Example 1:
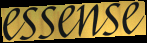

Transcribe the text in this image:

essense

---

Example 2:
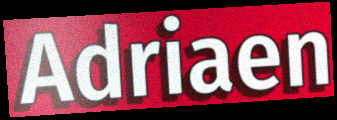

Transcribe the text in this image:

Adriaen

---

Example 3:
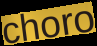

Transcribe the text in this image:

choro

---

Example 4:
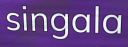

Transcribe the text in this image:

singala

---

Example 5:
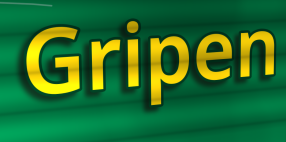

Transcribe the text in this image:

Gripen